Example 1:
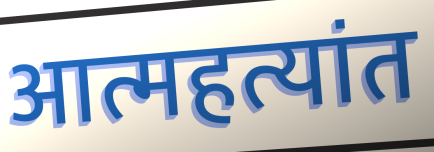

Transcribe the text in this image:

आत्महत्यांत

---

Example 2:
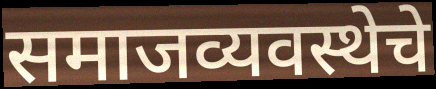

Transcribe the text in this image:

समाजव्यवस्थेचे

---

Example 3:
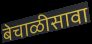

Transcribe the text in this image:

बेचाळीसावा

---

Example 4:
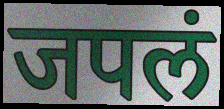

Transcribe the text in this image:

जपलं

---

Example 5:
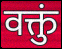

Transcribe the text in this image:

वक्तुं